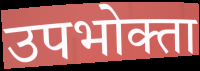
उपभोक्ता